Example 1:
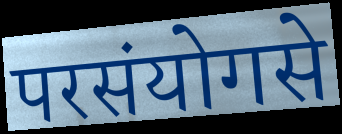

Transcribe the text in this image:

परसंयोगसे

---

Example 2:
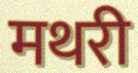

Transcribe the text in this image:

मथरी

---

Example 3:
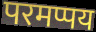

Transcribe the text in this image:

परमप्पय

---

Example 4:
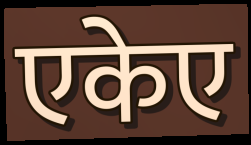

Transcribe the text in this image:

एकेए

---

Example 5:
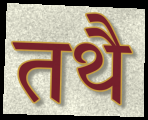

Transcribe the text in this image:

तथै